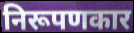
निरूपणकार